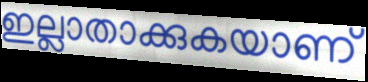
ഇല്ലാതാക്കുകയാണ്